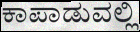
ಕಾಪಾಡುವಲ್ಲಿ